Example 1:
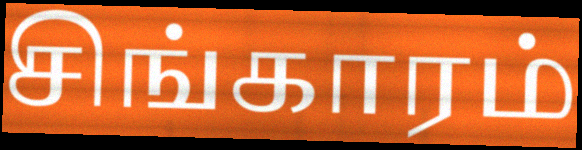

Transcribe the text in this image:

சிங்காரம்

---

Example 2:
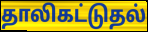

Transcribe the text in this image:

தாலிகட்டுதல்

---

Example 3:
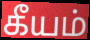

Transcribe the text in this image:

கீயம்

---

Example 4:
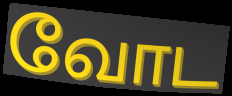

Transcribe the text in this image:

வோட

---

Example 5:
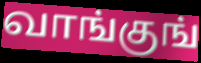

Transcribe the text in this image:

வாங்குங்